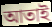
আতাই